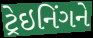
ટ્રેઇનિંગને